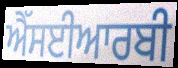
ਐੱਸਈਆਰਬੀ